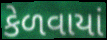
કેળવાયાં